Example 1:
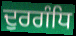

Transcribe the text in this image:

ਦੁਰਗੰਧਿ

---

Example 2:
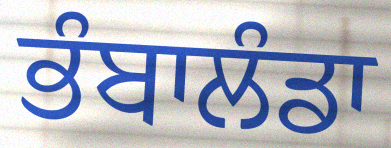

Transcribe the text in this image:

ਭੰਬਾਲੰਡਾ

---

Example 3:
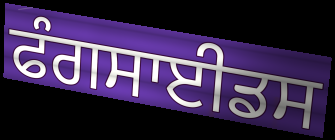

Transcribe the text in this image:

ਫੰਗਸਾਈਡਸ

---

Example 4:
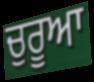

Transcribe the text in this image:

ਚੁਰੂਆ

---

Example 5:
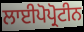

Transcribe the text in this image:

ਲਾਈਪੋਪ੍ਰੋਟੀਨ